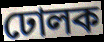
ঢোলক